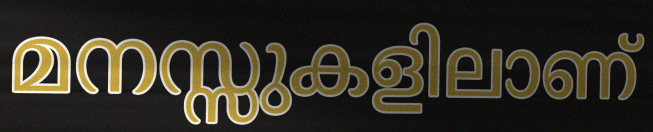
മനസ്സുകളിലാണ്